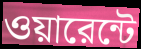
ওয়ারেন্টে